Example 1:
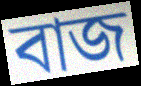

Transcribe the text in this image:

বাজ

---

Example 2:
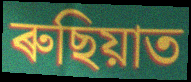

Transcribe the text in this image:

ৰুছিয়াত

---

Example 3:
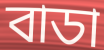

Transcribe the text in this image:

বাডা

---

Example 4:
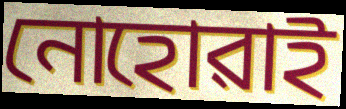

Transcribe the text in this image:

নোহোৱাই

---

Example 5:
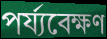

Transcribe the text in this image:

পৰ্য্যবেক্ষণ